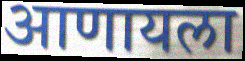
आणायला